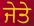
ਜੇਤੇ